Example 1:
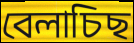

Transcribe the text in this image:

বেলাচিছ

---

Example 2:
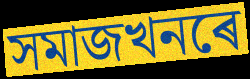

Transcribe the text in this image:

সমাজখনৰে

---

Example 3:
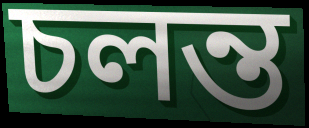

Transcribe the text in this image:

চলন্ত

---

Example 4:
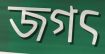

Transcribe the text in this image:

জগৎ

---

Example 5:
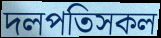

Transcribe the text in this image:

দলপতিসকল